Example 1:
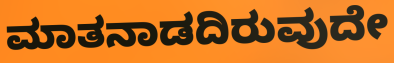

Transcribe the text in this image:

ಮಾತನಾಡದಿರುವುದೇ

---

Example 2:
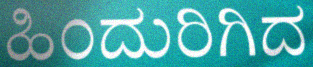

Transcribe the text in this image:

ಹಿಂದುರಿಗಿದ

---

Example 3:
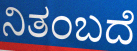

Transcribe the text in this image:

ನಿತಂಬದೆ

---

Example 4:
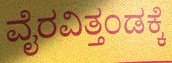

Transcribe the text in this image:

ವೈರವಿತ್ತಂಡಕ್ಕೆ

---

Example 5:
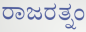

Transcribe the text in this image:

ರಾಜರತ್ನಂ